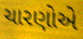
ચારણોએ